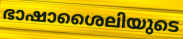
ഭാഷാശൈലിയുടെ